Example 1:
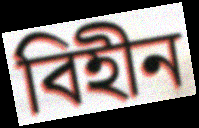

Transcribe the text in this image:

বিহীন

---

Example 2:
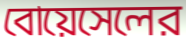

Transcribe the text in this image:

বোয়েসেলের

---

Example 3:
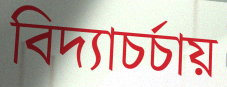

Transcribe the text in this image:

বিদ্যাচর্চায়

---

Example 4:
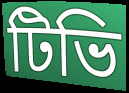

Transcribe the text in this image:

টিভি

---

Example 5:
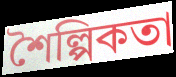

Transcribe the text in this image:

শৈল্পিকতা